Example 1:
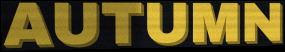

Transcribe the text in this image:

AUTUMN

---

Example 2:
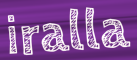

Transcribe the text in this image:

iralla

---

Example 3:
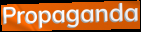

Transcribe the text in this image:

Propaganda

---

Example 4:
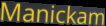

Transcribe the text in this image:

Manickam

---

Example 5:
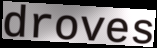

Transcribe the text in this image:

droves